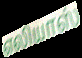
எலியாஸ்